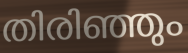
തിരിഞ്ഞും